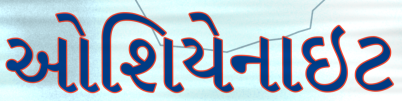
ઓશિયેનાઇટ